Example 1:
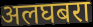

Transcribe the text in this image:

अलघबरा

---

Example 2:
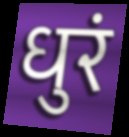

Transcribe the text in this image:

धुरं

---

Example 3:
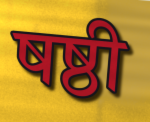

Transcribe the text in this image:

षष्ठी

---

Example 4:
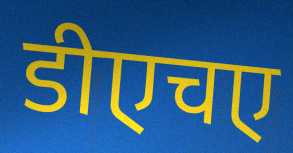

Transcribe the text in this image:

डीएचए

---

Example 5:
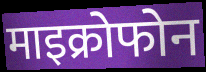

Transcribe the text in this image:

माइक्रोफोन